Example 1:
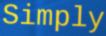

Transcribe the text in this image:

Simply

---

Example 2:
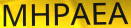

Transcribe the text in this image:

MHPAEA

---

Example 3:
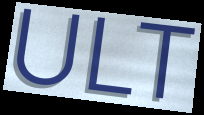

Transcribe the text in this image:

ULT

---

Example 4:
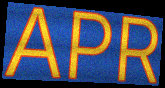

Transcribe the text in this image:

APR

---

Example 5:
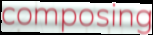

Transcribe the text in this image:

composing